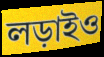
লড়াইও